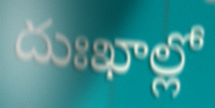
దుఃఖాల్లో